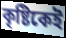
কৃষ্টিকেই